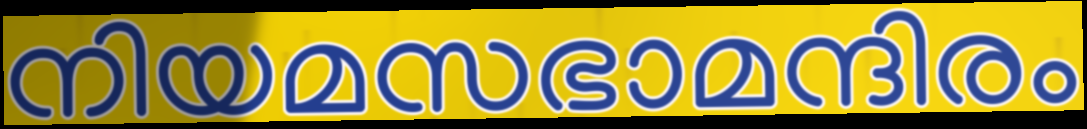
നിയമസഭാമന്ദിരം